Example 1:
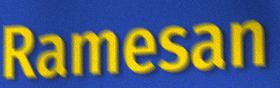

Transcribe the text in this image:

Ramesan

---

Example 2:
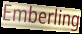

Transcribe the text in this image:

Emberling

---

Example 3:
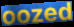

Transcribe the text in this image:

oozed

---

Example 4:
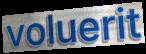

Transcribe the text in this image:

voluerit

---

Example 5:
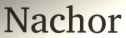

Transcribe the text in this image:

Nachor